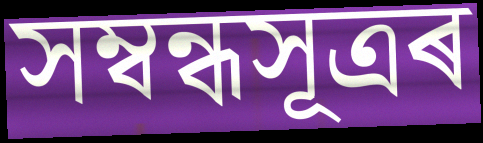
সম্বন্ধসূত্ৰৰ